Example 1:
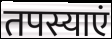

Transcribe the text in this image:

तपस्याएं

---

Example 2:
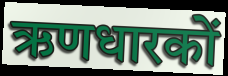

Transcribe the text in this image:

ऋणधारकों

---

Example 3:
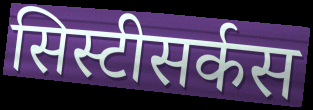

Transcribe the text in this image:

सिस्टीसर्कस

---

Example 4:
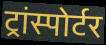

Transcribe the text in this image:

ट्रांस्पोर्टर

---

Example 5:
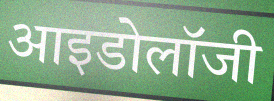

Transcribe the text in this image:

आइडोलॉजी